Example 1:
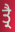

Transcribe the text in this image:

ਤ੍ਰੈ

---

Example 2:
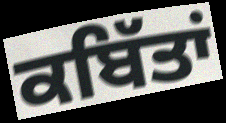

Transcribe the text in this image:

ਕਬਿੱਤਾਂ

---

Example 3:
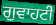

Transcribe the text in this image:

ਗੁਵਾਹਟੀ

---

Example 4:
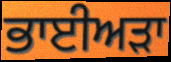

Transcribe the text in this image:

ਭਾਈਅੜਾ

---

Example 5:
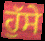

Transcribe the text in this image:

ਹੁੱਸੇ